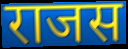
राजस